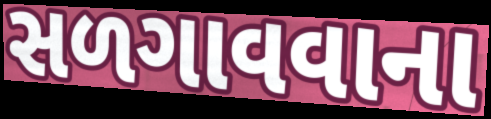
સળગાવવાના